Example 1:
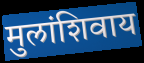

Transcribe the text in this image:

मुलांशिवाय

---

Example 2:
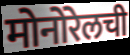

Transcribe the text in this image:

मोनोरेलची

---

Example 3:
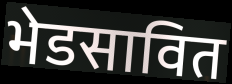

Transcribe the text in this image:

भेडसावित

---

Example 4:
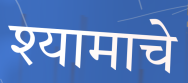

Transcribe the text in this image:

श्यामाचे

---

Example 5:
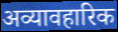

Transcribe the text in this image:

अव्यावहारिक